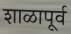
शाळापूर्व